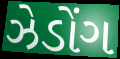
ઝેડોંગ